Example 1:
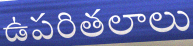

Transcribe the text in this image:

ఉపరితలాలు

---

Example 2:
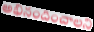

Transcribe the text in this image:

అభినందించాలని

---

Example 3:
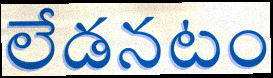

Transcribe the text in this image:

లేడనటం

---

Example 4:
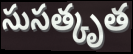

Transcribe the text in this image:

సుసత్కృత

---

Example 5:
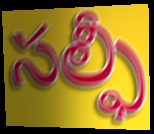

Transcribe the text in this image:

సల్ఫీ